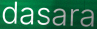
dasara